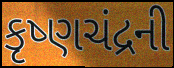
કૃષ્ણચંદ્રની